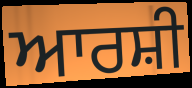
ਆਰਸ਼ੀ